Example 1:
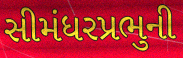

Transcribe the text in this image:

સીમંધરપ્રભુની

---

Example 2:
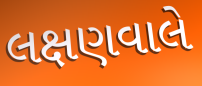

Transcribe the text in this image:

લક્ષણવાલે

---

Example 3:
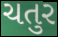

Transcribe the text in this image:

ચતુર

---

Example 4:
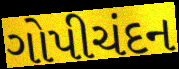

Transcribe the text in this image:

ગોપીચંદન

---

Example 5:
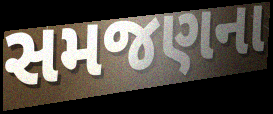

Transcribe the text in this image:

સમજણના